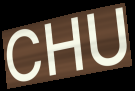
CHU